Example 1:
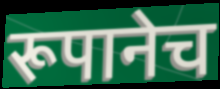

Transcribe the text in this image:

रूपानेच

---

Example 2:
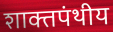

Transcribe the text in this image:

शाक्तपंथीय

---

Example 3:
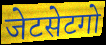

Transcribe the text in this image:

जेटसेटगो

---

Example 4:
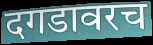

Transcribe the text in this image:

दगडावरच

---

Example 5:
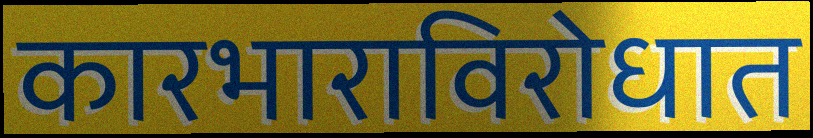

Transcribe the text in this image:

कारभाराविरोधात